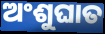
ଅଂଶୁଘାତ